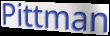
Pittman